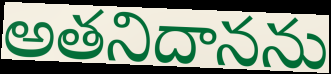
అతనిదానను